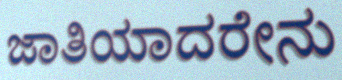
ಜಾತಿಯಾದರೇನು